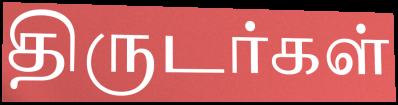
திருடர்கள்